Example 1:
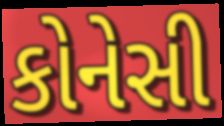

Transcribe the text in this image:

કોનેસી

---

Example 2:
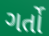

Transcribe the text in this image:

ગર્તો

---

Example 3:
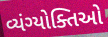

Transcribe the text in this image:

વ્યંગ્યોક્તિઓ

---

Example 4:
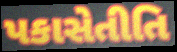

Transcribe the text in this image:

પકાસેતીતિ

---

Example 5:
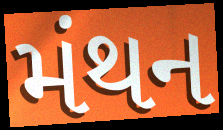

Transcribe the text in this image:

મંથન